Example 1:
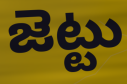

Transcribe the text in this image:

జెట్టు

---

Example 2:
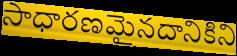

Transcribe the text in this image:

సాధారణమైనదానికిని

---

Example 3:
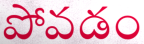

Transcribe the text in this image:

పోవడం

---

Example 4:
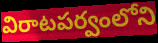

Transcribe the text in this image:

విరాటపర్వంలోని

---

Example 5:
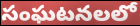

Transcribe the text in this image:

సంఘటనలలో